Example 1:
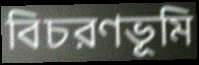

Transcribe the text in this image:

বিচরণভূমি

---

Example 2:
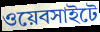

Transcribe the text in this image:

ওয়েবসাইটে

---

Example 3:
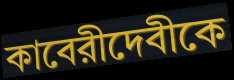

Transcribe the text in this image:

কাবেরীদেবীকে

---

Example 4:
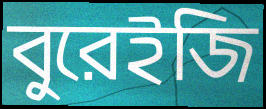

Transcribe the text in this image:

বুরেইজি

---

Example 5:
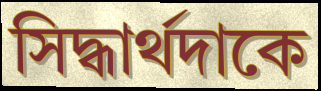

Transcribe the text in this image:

সিদ্ধার্থদাকে